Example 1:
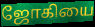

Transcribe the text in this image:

ஜோகியை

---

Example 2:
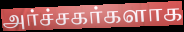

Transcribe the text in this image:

அர்ச்சகர்களாக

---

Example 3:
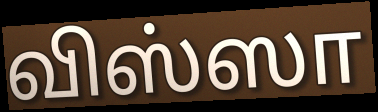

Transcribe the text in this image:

விஸ்ஸா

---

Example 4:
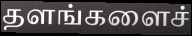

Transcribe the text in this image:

தளங்களைச்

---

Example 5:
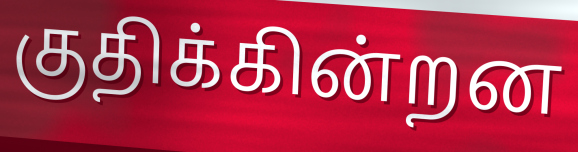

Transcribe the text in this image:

குதிக்கின்றன